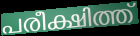
പരീക്ഷിത്ത്